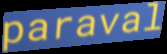
paraval